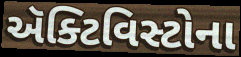
ઍક્ટિવિસ્ટોના